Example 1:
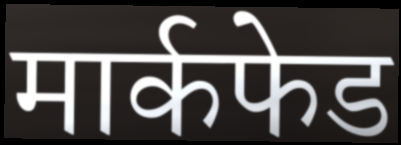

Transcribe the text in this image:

मार्कफेड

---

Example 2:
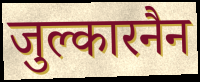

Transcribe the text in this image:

जुल्कारनैन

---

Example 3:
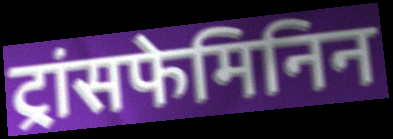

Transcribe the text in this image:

ट्रांसफेमिनिन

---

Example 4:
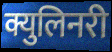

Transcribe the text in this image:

क्युलिनरी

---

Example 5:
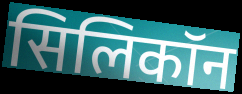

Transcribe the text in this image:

सिलिकॉन